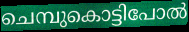
ചെമ്പുകൊട്ടിപോൽ